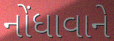
નોંધાવાને